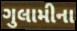
ગુલામીના